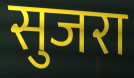
सुजरा